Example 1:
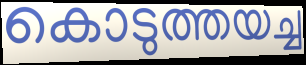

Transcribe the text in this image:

കൊടുത്തയച്ച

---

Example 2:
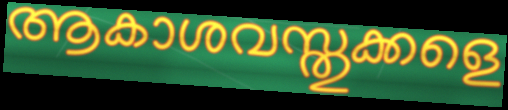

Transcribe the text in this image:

ആകാശവസ്തുക്കളെ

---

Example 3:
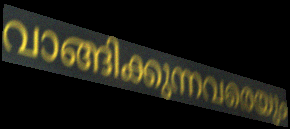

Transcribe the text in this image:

വാങ്ങിക്കുന്നവരെയും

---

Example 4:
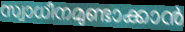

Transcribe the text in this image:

സ്വാധീനമുണ്ടാക്കാൻ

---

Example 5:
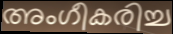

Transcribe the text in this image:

അംഗീകരിച്ച